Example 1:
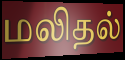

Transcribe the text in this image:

மலிதல்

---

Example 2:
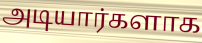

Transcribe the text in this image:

அடியார்களாக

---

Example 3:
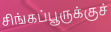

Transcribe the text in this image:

சிங்கப்பூருக்குச்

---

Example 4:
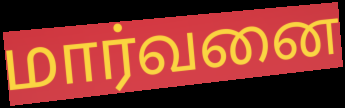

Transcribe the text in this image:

மார்வனை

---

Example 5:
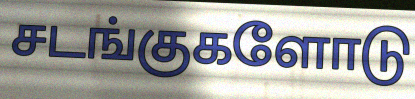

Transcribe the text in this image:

சடங்குகளோடு